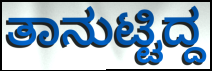
ತಾನುಟ್ಟಿದ್ದ